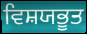
ਵਿਸ਼ਯਭੂਤ